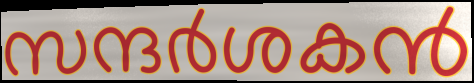
സന്ദർശകൻ